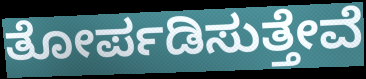
ತೋರ್ಪಡಿಸುತ್ತೇವೆ